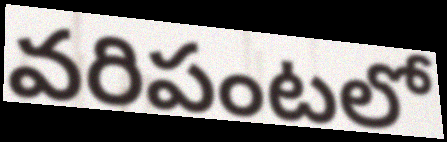
వరిపంటలో